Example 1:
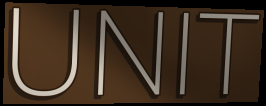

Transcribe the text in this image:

UNIT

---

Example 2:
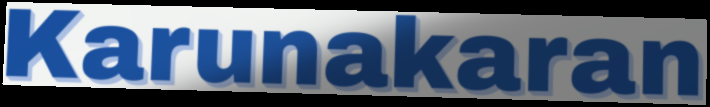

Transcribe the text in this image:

Karunakaran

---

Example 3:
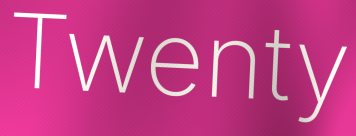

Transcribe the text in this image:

Twenty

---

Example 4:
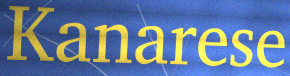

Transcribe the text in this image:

Kanarese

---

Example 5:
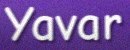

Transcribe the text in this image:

Yavar